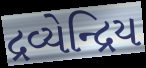
દ્રવ્યેન્દ્રિય